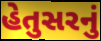
હેતુસરનું